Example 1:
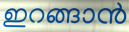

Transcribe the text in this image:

ഇറങ്ങാൻ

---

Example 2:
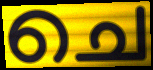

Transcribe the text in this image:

ചെ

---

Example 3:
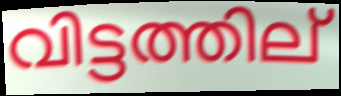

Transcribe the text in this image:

വിട്ടത്തില്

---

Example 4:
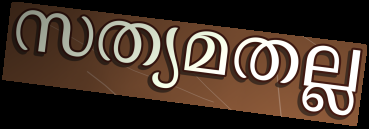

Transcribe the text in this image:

സത്യമതല്ല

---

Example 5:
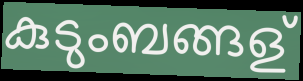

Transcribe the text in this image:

കുടുംബങ്ങള്